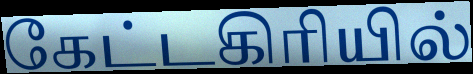
கேட்டகிரியில்